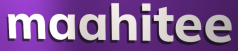
maahitee